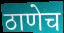
ठाणेच